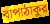
বাপাঠাকুর